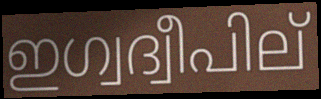
ഇഗ്വദ്വീപില്